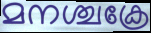
മനശ്ചക്രേ